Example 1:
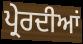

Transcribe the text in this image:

ਪ੍ਰੇਰਦੀਆਂ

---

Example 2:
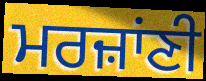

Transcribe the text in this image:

ਮਰਜ਼ਾਂਣੀ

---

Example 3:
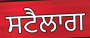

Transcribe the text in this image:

ਸਟੈਲਾਗ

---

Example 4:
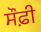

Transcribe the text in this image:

ਸੌਫ਼ੀ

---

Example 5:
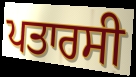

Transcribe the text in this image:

ਪਤਾਰਸੀ